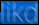
likd